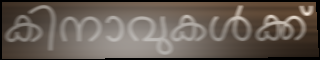
കിനാവുകൾക്ക്